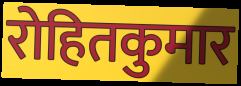
रोहितकुमार